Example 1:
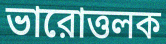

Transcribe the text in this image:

ভারোত্তলক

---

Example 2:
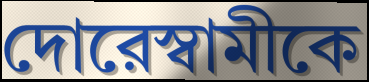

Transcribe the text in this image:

দোরেস্বামীকে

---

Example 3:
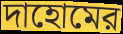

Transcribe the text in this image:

দাহোমের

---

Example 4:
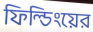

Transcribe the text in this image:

ফিল্ডিংয়ের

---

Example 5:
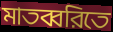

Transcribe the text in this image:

মাতব্বরিতে